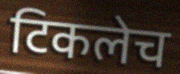
टिकलेच